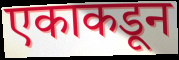
एकाकडून